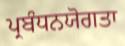
ਪ੍ਰਬੰਧਨਯੋਗਤਾ